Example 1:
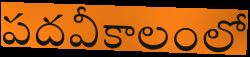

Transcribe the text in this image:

పదవీకాలంలో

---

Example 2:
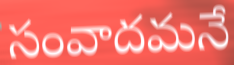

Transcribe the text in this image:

సంవాదమనే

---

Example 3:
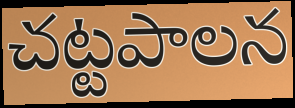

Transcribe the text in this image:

చట్టపాలన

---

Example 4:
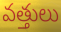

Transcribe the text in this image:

వత్తులు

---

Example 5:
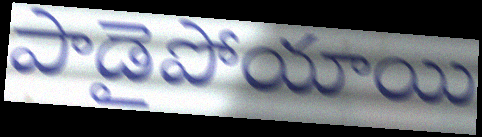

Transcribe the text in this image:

పాడైపోయాయి